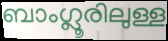
ബാംഗ്ലൂരിലുള്ള